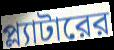
প্ল্যাটারের